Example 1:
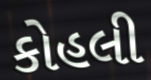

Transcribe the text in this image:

કોહલી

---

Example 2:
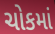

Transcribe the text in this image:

ચોકમાં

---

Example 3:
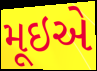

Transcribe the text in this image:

મૂઇએ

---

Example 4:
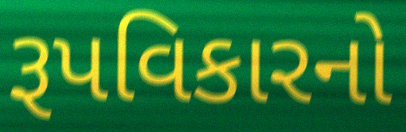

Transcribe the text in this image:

રૂપવિકારનો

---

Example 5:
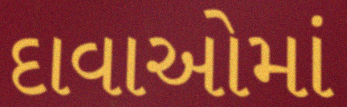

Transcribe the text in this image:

દાવાઓમાં